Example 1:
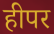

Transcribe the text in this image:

हीपर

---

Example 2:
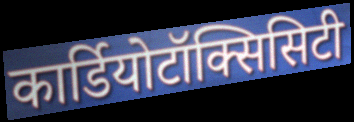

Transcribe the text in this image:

कार्डियोटॉक्सिसिटी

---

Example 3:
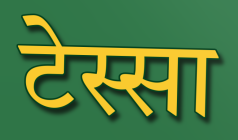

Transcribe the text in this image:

टेस्सा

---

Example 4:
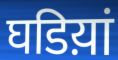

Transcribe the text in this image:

घडिय़ां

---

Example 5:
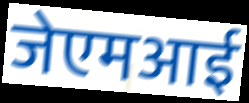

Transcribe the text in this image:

जेएमआई